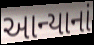
આન્યાનાં